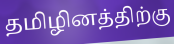
தமிழினத்திற்கு